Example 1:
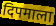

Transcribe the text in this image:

दिपमाला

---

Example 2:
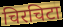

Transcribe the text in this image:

चिरचिटा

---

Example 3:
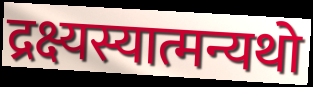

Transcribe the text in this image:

द्रक्ष्यस्यात्मन्यथो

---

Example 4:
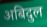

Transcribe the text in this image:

अबिदुल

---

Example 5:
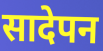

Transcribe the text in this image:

सादेपन